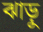
ঝাড়ু